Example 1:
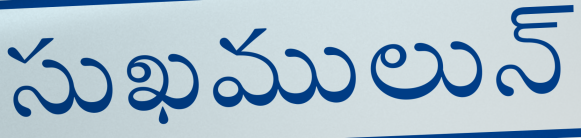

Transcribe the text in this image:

సుఖములున్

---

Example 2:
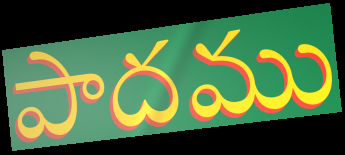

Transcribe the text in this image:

పాదము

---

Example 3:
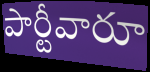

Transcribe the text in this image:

పార్టీవారూ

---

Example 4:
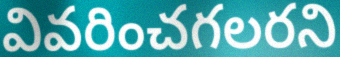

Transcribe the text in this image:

వివరించగలరని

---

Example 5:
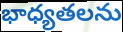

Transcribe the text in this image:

భాధ్యతలను